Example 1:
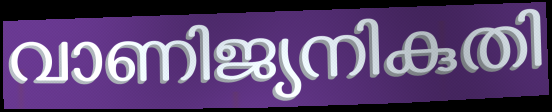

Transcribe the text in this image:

വാണിജ്യനികുതി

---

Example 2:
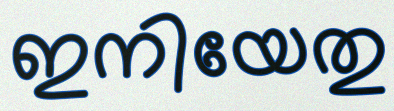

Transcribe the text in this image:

ഇനിയേതു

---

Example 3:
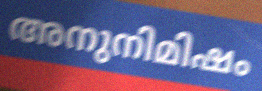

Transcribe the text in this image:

അനുനിമിഷം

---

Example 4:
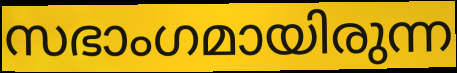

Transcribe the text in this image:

സഭാംഗമായിരുന്ന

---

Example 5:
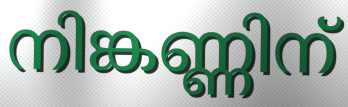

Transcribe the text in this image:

നിങ്കണ്ണിന്